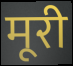
मूरी